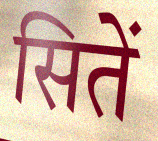
सितें